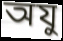
অযু